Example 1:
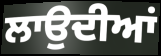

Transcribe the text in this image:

ਲਾਉਦੀਆਂ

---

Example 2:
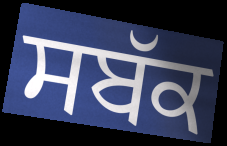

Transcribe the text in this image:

ਸਬੱਕ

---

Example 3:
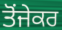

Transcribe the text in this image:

ਤੋਂਜੇਕਰ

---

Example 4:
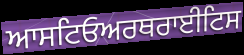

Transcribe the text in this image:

ਆਸਟਿਓਅਰਥਰਾਈਟਿਸ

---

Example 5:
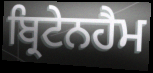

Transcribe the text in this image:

ਬ੍ਰਿਟੇਨਹੈਮ